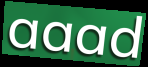
aaad